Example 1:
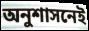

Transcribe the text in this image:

অনুশাসনেই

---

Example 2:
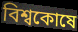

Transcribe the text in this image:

বিশ্বকোষে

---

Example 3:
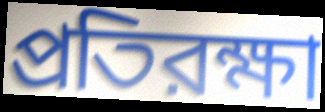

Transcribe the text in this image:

প্রতিরক্ষা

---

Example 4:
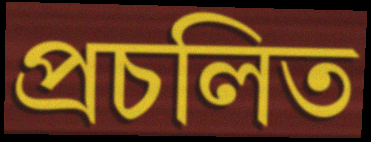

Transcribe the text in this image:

প্রচলিত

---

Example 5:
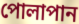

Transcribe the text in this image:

পোলাপান